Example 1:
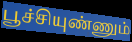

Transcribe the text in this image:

பூச்சியுண்ணும்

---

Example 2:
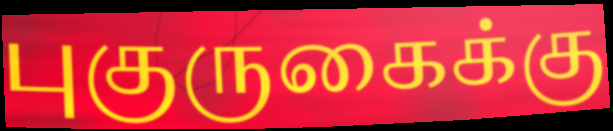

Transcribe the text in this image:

புகுருகைக்கு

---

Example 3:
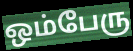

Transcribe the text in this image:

ஒம்பேரு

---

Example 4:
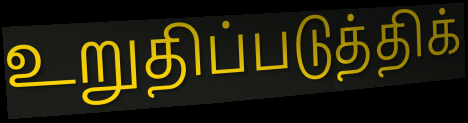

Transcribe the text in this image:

உறுதிப்படுத்திக்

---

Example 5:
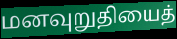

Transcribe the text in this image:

மனவுறுதியைத்